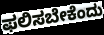
ಫಲಿಸಬೇಕೆಂದು